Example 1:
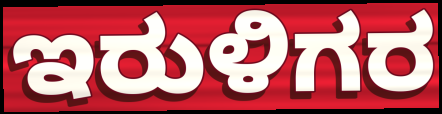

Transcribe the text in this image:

ಇರುಳಿಗರ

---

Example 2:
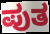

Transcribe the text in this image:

ಪುತ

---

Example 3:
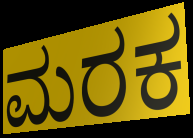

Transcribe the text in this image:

ಮರಕ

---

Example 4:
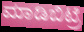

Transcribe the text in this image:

ಮಾಡಿಬಿಟ್ರೆ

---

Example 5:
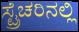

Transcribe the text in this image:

ಸ್ಟ್ರೆಚರಿನಲ್ಲಿ